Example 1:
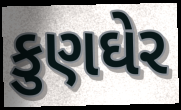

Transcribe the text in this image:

કુણઘેર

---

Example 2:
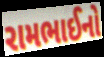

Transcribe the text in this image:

રામભાઈનો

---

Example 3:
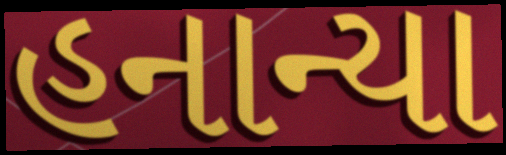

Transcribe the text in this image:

હનાન્યા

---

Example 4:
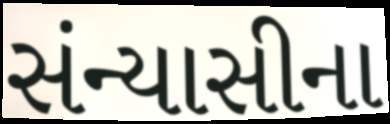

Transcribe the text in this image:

સંન્યાસીના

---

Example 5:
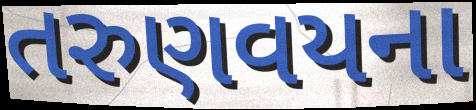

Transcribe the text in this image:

તરુણવયના